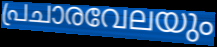
പ്രചാരവേലയും